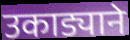
उकाड्याने